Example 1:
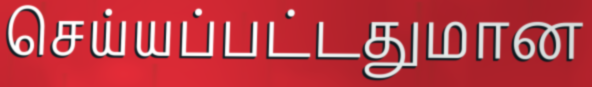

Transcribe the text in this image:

செய்யப்பட்டதுமான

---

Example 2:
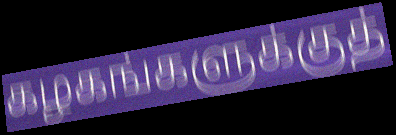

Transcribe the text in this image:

கழகங்களுக்குத்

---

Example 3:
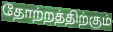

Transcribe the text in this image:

தோற்றத்திற்கும்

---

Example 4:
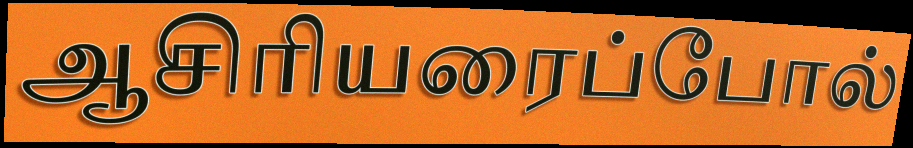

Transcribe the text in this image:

ஆசிரியரைப்போல்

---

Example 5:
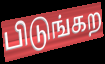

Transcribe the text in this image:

பிடுங்கற